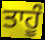
ਤਾਹੂੰ